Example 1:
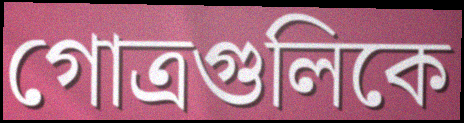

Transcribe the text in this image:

গোত্রগুলিকে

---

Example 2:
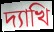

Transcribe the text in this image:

দ্যাখি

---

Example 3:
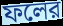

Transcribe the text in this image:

ফলের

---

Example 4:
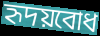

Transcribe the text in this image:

হৃদয়বোধ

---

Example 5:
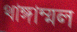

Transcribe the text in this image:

থাঙ্গাম্মল